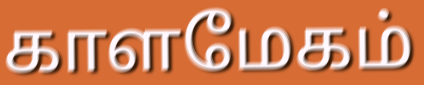
காளமேகம்